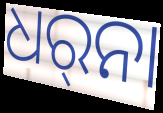
ଧର୍‌ନା